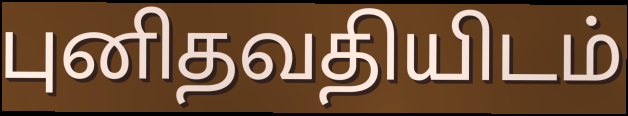
புனிதவதியிடம்